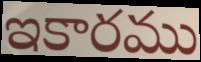
ఇకారము